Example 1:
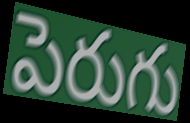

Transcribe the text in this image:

పెరుగు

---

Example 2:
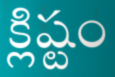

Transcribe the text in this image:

క్లిష్టం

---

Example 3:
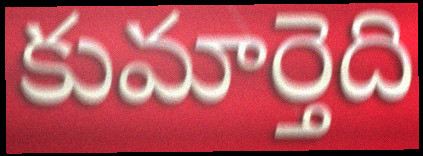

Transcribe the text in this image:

కుమార్తెది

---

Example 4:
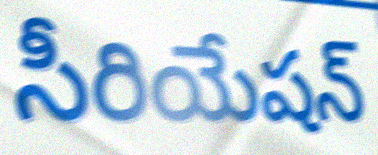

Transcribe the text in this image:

సీరియేషన్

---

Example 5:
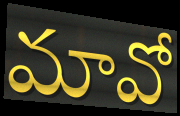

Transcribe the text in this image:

మావో